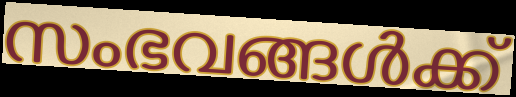
സംഭവങ്ങൾക്ക്